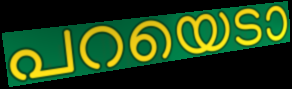
പറയെടാ